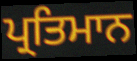
ਪ੍ਰਤਿਮਾਨ